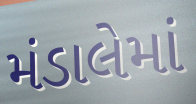
મંડાલેમાં